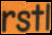
rstl